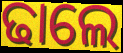
ଢାଲେ